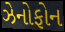
ઝેનોફોન